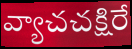
వ్యాచచక్షిరే